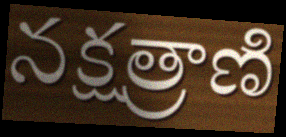
నక్షత్రాణి